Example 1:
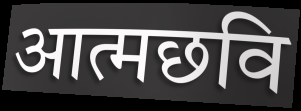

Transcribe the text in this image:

आत्मछवि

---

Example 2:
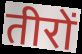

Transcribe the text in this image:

तीरों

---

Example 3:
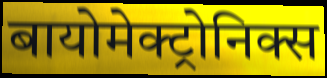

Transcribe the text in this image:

बायोमेक्ट्रोनिक्स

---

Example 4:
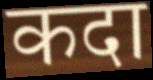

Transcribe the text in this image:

कदा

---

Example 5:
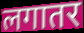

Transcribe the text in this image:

लगातर